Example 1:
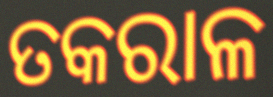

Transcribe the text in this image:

ତକରାଳ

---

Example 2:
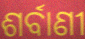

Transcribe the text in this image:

ଶର୍ବାଣୀ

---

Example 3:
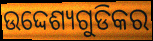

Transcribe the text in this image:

ଉଦ୍ଦେଶ୍ୟଗୁଡିକର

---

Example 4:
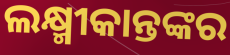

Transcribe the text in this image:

ଲକ୍ଷ୍ମୀକାନ୍ତଙ୍କର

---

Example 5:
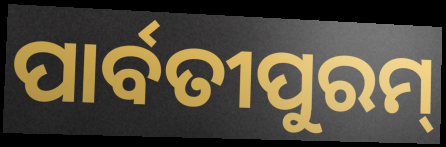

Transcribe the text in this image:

ପାର୍ବତୀପୁରମ୍